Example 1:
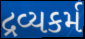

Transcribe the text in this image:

દ્રવ્યકર્મ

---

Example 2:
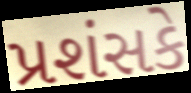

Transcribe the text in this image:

પ્રશંસકે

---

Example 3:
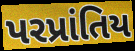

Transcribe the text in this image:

પરપ્રાંતિય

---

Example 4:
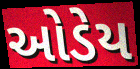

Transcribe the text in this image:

ઓડેય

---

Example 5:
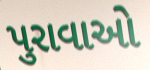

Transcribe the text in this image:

પુરાવાઓ